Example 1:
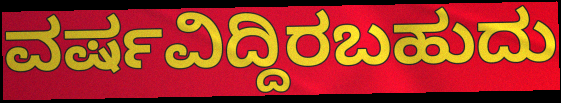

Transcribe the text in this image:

ವರ್ಷವಿದ್ದಿರಬಹುದು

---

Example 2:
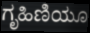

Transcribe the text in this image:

ಗೃಹಿಣಿಯೂ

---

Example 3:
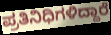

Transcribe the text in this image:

ಪ್ರತಿನಿಧಿಗಳಿದ್ದಾರೆ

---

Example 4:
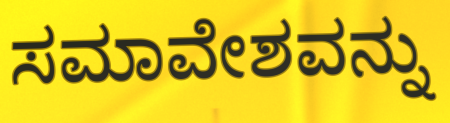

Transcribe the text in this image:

ಸಮಾವೇಶವನ್ನು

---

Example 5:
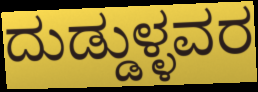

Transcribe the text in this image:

ದುಡ್ಡುಳ್ಳವರ